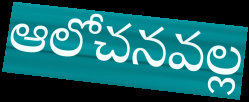
ఆలోచనవల్ల